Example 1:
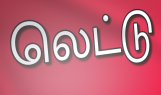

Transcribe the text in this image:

லெட்டு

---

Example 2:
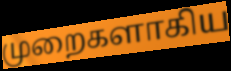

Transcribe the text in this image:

முறைகளாகிய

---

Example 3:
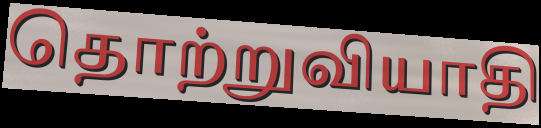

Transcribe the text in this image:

தொற்றுவியாதி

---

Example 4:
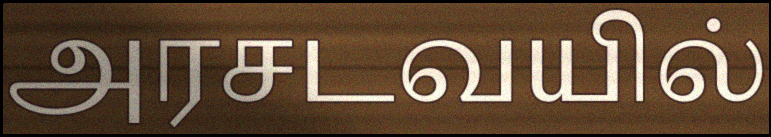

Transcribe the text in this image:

அரசடவயில்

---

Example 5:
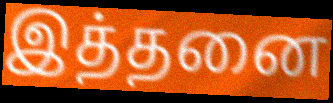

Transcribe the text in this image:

இத்தனை